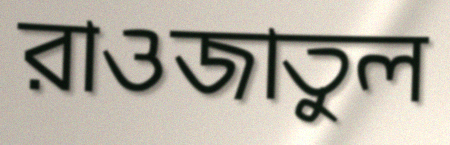
রাওজাতুল